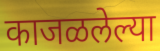
काजळलेल्या